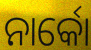
ନାର୍କୋ